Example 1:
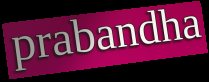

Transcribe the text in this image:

prabandha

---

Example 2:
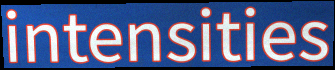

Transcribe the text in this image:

intensities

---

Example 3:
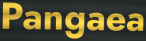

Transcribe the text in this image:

Pangaea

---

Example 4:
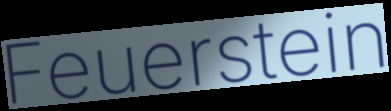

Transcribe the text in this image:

Feuerstein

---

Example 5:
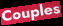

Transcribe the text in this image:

Couples